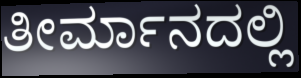
ತೀರ್ಮಾನದಲ್ಲಿ